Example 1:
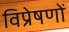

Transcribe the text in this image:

विप्रेषणों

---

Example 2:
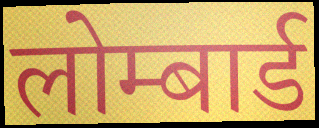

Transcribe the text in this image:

लोम्बार्ड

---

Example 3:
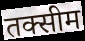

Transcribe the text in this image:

तक्सीम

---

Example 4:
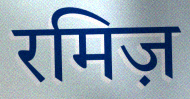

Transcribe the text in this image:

रमिज़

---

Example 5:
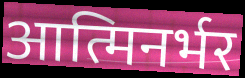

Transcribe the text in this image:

आत्मिनर्भर